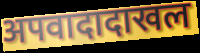
अपवादादाखल